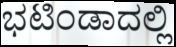
ಭಟಿಂಡಾದಲ್ಲಿ